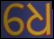
ଧେ